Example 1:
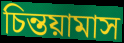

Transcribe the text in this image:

চিন্তয়ামাস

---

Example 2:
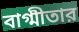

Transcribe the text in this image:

বাগ্মীতার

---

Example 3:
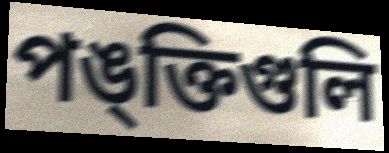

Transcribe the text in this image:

পঙ্ক্তিগুলি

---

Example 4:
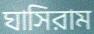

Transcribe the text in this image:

ঘাসিরাম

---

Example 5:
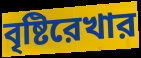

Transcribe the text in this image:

বৃষ্টিরেখার